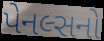
પેનલ્સનો